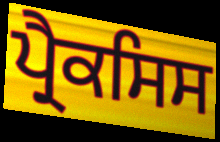
ਪ੍ਰੈਕਸਿਸ